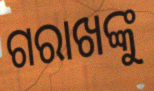
ଗରାଖଙ୍କୁ